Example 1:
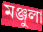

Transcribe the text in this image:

মঞ্জুলা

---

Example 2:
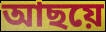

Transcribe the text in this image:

আছয়ে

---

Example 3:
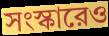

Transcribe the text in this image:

সংস্কারেও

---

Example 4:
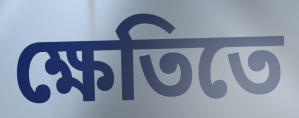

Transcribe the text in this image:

ক্ষেতিতে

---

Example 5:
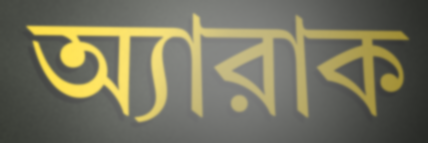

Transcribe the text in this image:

অ্যারাক